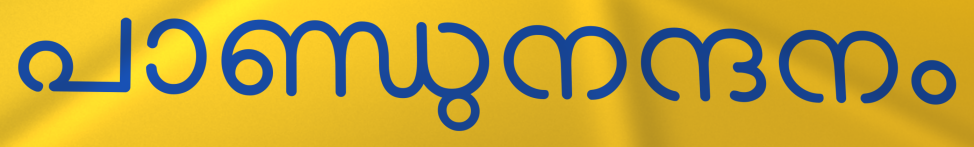
പാണ്ഡുനന്ദനം